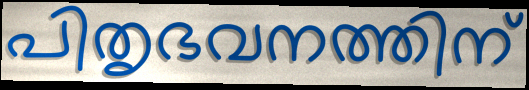
പിതൃഭവനത്തിന്